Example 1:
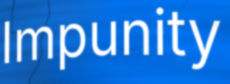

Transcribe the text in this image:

Impunity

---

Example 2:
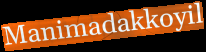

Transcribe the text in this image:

Manimadakkoyil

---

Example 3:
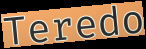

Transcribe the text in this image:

Teredo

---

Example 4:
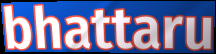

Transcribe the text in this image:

bhattaru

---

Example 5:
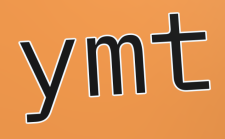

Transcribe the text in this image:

ymt